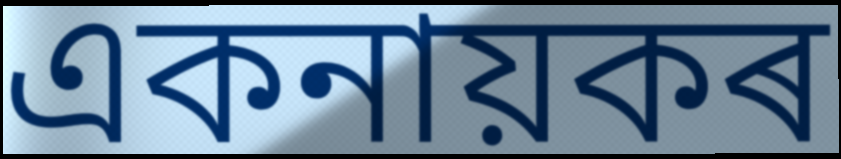
একনায়কৰ